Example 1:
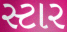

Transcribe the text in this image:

સ્ટાર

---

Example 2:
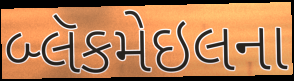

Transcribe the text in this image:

બ્લૅકમેઇલના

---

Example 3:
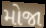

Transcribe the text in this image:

મોજા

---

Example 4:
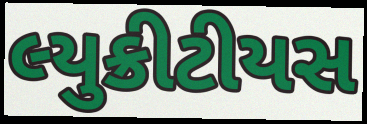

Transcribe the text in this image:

લ્યુક્રીટીયસ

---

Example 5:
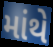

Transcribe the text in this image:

માંથે